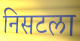
निसटला